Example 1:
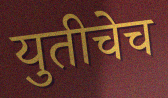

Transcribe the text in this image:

युतीचेच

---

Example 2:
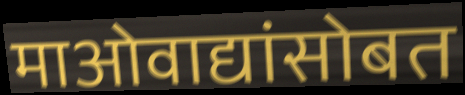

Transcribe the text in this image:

माओवाद्यांसोबत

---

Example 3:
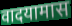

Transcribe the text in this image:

वादयामास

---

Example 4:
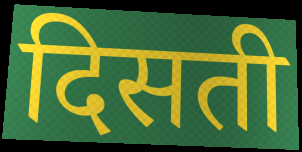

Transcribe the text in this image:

दिसती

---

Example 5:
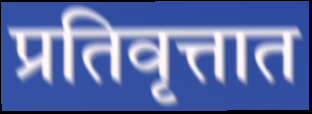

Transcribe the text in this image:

प्रतिवृत्तात